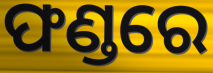
ଫଣ୍ଡରେ